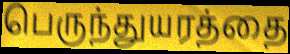
பெருந்துயரத்தை